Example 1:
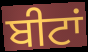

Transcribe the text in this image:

ਬੀਟਾਂ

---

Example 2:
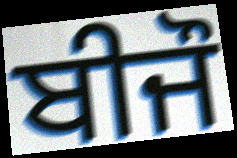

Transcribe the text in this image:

ਬੀਜੌ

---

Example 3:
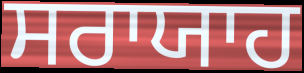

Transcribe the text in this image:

ਸਰਾਯਾਹ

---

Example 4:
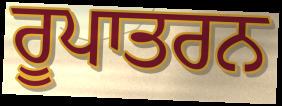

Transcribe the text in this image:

ਰੂਪਾਤਰਨ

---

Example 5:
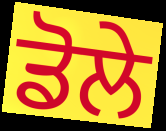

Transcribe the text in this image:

ਡੋਲੇ